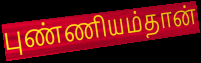
புண்ணியம்தான்